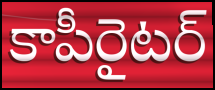
కాపీరైటర్